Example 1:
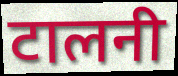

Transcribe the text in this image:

टालनी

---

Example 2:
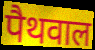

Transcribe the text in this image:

पैथवाल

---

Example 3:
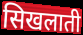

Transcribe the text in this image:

सिखलाती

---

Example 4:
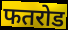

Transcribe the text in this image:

फतरोड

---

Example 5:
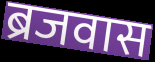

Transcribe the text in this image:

ब्रजवास